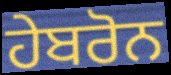
ਹੇਬਰੋਨ